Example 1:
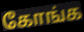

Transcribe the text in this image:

கோங்க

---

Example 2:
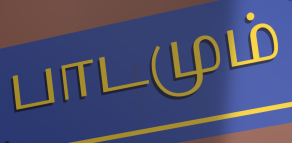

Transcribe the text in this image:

பாடமும்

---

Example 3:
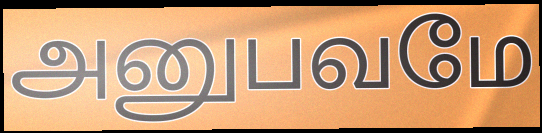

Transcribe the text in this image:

அனுபவமே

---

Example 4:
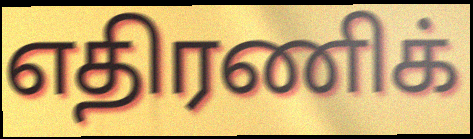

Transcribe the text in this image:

எதிரணிக்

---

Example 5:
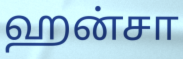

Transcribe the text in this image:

ஹன்சா